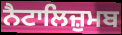
ਨੈਟਾਲਿਜ਼ੁਮਬ